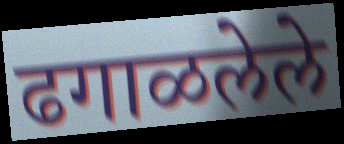
ढगाळलेले